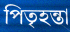
পিতৃহন্তা